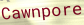
Cawnpore